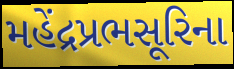
મહેંદ્રપ્રભસૂરિના